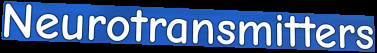
Neurotransmitters